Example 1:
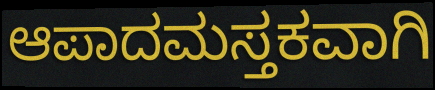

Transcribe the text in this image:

ಆಪಾದಮಸ್ತಕವಾಗಿ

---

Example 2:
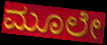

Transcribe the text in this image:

ಮೂಲೇ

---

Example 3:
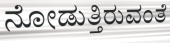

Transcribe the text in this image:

ನೋಡುತ್ತಿರುವಂತೆ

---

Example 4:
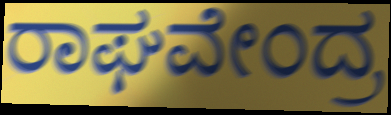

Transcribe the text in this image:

ರಾಘವೇಂದ್ರ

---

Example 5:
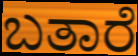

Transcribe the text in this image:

ಬತಾರೆ